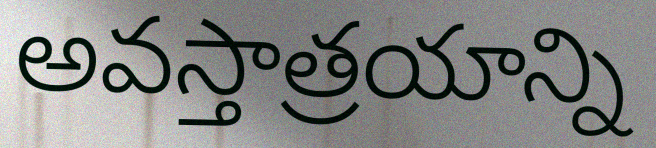
అవస్తాత్రయాన్ని